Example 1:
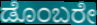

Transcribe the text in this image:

ಡೊಂಬರೇ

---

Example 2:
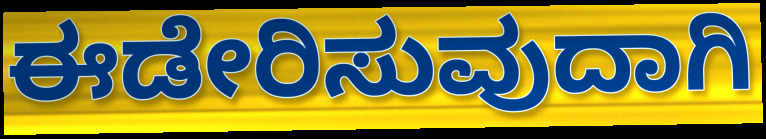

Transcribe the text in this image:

ಈಡೇರಿಸುವುದಾಗಿ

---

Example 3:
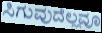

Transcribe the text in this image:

ಸಿಗುವುದೆಲ್ಲವೂ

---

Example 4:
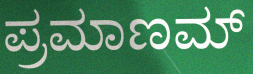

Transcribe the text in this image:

ಪ್ರಮಾಣಮ್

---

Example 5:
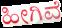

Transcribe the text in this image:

ಹೀಗಿವೆ